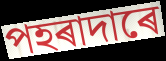
পহৰাদাৰে